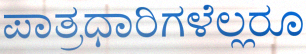
ಪಾತ್ರಧಾರಿಗಳೆಲ್ಲರೂ